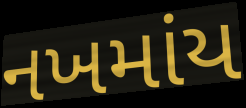
નખમાંય